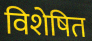
विशेषित